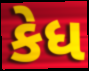
કેધ